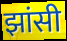
झांसी